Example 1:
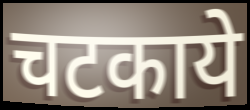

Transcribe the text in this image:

चटकाये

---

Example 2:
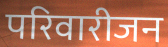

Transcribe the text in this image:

परिवारीजन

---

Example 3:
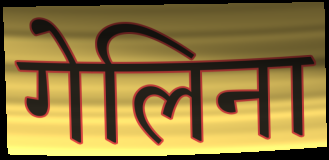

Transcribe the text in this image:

गेलिना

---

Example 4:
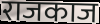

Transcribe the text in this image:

राजकाज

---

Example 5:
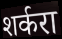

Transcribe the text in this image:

शर्करा